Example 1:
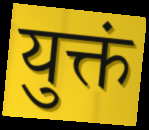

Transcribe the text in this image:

युक्तं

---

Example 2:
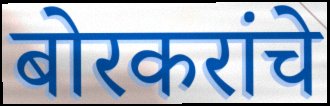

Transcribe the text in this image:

बोरकरांचे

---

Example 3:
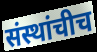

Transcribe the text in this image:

संस्थांचीच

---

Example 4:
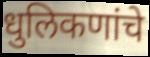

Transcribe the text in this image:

धुलिकणांचे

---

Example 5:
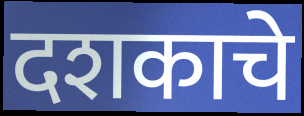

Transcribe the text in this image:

दशकाचे